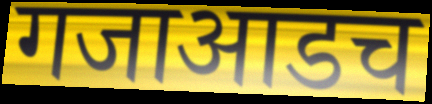
गजाआडच